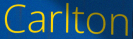
Carlton